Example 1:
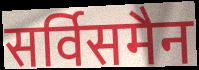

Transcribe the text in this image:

सर्विसमैन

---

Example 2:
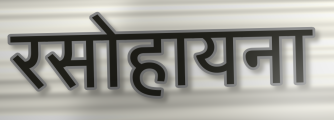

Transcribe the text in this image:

रसोहायना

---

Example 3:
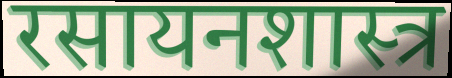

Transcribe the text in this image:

रसायनशास्त्र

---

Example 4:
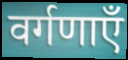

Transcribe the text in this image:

वर्गणाएँ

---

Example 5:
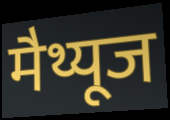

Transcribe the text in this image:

मैथ्‍यूज